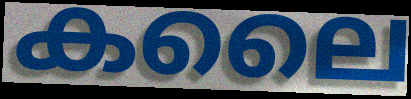
കലൈ